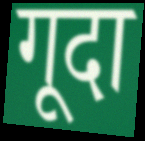
गूदा